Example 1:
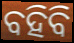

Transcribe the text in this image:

ବହିବି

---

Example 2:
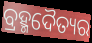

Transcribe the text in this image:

ବ୍ରହ୍ମଦୈତ୍ୟର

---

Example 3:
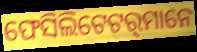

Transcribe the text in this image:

ଫେସିଲିଟେଟର୍‌ମାନେ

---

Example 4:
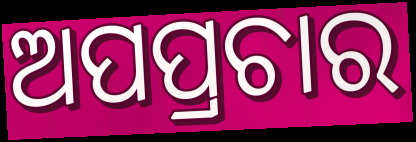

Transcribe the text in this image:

ଅପପ୍ରଚାର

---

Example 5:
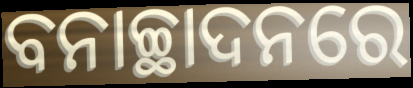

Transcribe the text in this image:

ବନାଚ୍ଛାଦନରେ